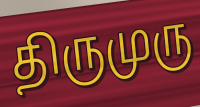
திருமுரு